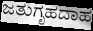
ಜತುಗೃಹದಾಹ